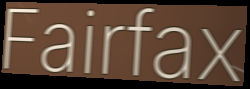
Fairfax